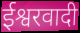
ईश्वरवादी